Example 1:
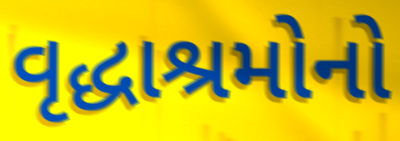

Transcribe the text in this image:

વૃદ્ધાશ્રમોનો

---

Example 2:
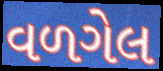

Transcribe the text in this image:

વળગેલ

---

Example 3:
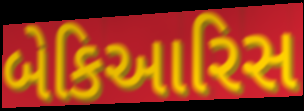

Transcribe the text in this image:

બેકિઆરિસ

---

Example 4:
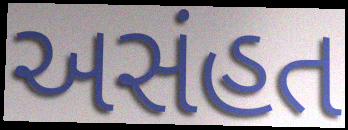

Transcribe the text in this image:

અસંહત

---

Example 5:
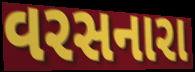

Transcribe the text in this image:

વરસનારા